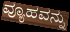
ವ್ಯೂಹವನ್ನು